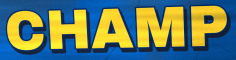
CHAMP